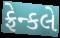
ફ્રેન્કલે